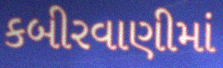
કબીરવાણીમાં